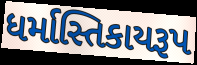
ધર્માસ્તિકાયરૂપ